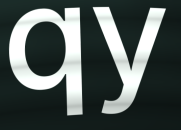
qy